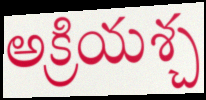
అక్రియశ్చ